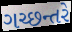
ગચ્છન્તરે